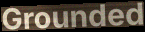
Grounded